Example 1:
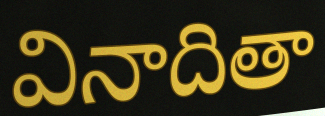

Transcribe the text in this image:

వినాదితా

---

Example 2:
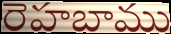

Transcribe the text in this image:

రెహబాము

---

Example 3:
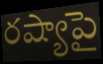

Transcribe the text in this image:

రష్యాపై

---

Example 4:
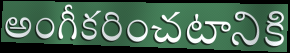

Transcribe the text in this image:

అంగీకరించటానికి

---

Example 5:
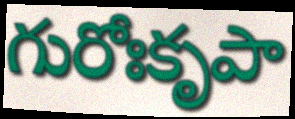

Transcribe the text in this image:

గురోఃకృపా